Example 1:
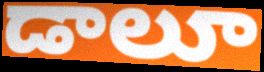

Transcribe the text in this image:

డాలూ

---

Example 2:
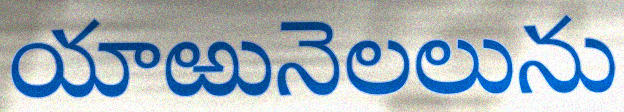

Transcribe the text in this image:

యాఱునెలలును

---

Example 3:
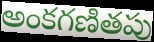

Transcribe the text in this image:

అంకగణితపు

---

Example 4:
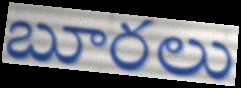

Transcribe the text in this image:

బూరలు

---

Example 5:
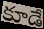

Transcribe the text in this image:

కూడే